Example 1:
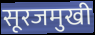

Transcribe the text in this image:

सूरजमुखी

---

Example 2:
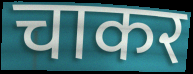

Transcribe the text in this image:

चाकर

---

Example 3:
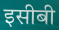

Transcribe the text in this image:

इसीबी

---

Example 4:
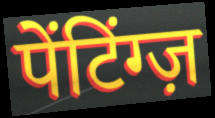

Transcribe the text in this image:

पेंटिंग्ज़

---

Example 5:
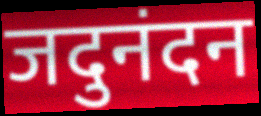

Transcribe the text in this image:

जदुनंदन